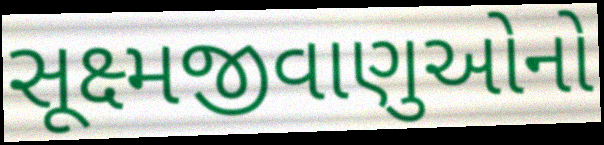
સૂક્ષ્મજીવાણુઓનો